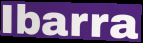
Ibarra